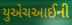
યુએચઆઈની